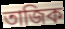
তাজিক